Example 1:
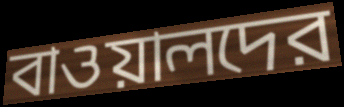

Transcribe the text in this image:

বাওয়ালদের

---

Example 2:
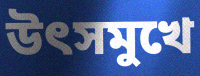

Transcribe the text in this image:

উৎসমুখে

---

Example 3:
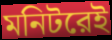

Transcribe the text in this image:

মনিটরেই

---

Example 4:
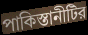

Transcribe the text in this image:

পাকিস্তানীটির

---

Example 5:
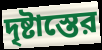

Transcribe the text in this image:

দৃষ্টাস্তের